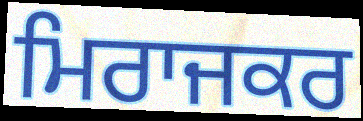
ਮਿਰਾਜਕਰ